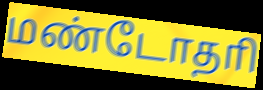
மண்டோதரி